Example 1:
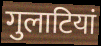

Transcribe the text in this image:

गुलाटियां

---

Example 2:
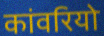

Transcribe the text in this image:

कांवरियो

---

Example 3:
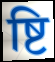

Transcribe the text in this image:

ष्टि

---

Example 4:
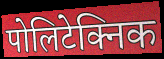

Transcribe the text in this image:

पोलिटेक्निक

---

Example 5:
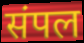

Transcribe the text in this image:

संपल